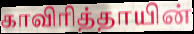
காவிரித்தாயின்